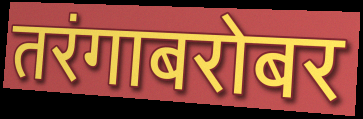
तरंगाबरोबर